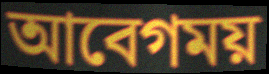
আবেগময়